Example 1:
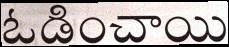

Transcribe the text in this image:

ఓడించాయి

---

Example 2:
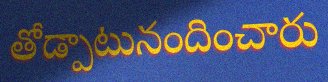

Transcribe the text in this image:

తోడ్పాటునందించారు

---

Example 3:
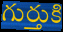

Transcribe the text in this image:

గుర్తుకి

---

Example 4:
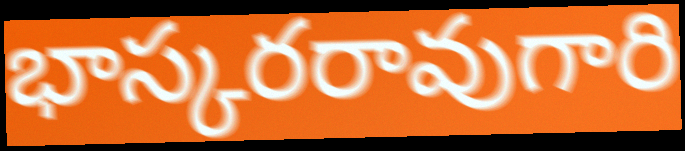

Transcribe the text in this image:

భాస్కరరావుగారి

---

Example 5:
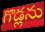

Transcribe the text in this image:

గొడ్లను